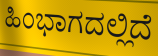
ಹಿಂಭಾಗದಲ್ಲಿದೆ